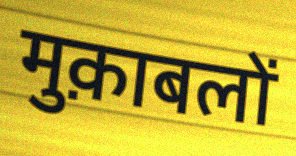
मुक़ाबलों